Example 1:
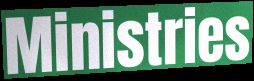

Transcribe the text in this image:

Ministries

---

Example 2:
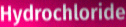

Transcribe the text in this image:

Hydrochloride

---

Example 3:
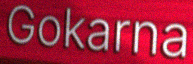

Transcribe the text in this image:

Gokarna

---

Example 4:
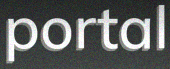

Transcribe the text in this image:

portal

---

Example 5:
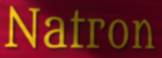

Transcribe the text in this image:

Natron